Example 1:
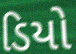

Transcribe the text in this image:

ડિયો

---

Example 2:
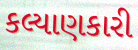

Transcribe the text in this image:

કલ્યાણકારી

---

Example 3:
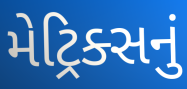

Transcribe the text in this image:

મેટ્રિક્સનું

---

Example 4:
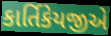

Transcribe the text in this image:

કાર્તિકેયજીએ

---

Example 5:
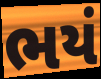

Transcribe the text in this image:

ભયં